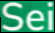
Sei